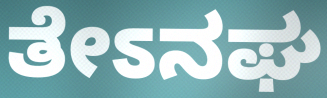
ತೇಽನಘ